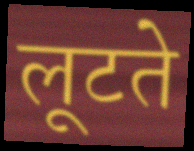
लूटते